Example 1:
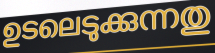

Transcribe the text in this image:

ഉടലെടുക്കുന്നതു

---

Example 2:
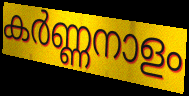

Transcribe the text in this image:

കർണ്ണനാളം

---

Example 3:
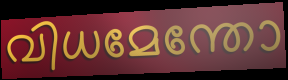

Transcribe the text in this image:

വിധമേന്തോ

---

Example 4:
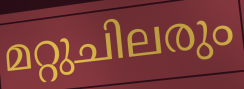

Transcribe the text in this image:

മറ്റുചിലരും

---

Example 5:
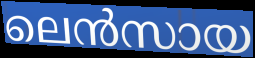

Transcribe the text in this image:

ലെൻസായ